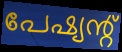
പേഷ്യന്റ്